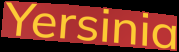
Yersinia